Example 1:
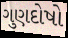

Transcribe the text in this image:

ગુણદોષો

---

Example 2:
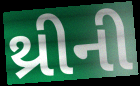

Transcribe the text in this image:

થ્રીની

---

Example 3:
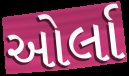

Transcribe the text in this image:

ઓર્લા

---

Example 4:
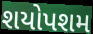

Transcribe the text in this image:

શયોપશમ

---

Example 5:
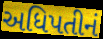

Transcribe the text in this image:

અધિપતીનં